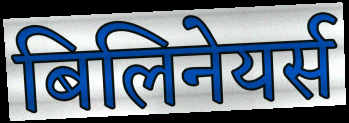
बिलिनेयर्स